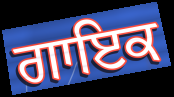
ਗਾਇਕ